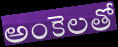
అంకెలతో